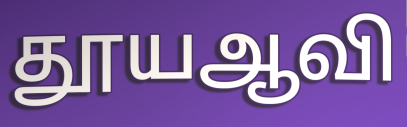
தூயஆவி